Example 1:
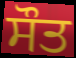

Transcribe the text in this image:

ਸੌਤ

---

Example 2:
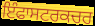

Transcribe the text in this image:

ਇੰਫਾਸਟਰਕਚਰ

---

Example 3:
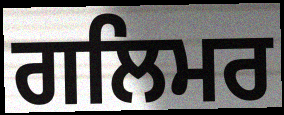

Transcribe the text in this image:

ਗਲਿਮਰ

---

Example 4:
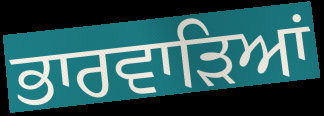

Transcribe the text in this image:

ਭਾਰਵਾੜਿਆਂ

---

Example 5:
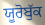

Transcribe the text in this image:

ਯੂਰੋਬੁੱਕ